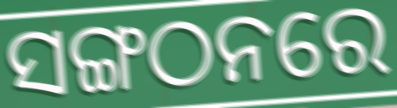
ସଙ୍ଗଠନରେ